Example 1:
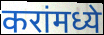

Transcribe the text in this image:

करांमध्ये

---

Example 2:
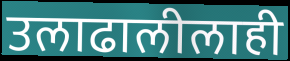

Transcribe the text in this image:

उलाढालीलाही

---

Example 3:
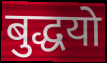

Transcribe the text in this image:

बुद्धयो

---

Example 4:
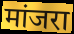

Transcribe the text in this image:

मांजरा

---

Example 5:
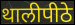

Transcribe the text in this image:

थालीपीठे